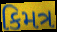
કિમત્ર